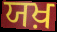
ਯਖ਼